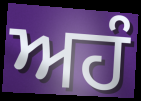
ਅਹੰ